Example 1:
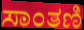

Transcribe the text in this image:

ಸಾಂತಣಿ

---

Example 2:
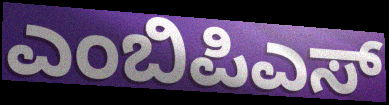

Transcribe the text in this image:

ಎಂಬಿಪಿಎಸ್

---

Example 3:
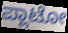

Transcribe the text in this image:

ಪ್ಲಾಟೋ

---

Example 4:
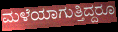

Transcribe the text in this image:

ಮಳೆಯಾಗುತ್ತಿದ್ದರೂ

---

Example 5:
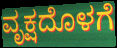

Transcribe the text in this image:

ವೃಕ್ಷದೊಳಗೆ